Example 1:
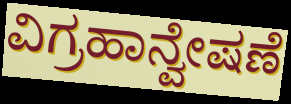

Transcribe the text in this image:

ವಿಗ್ರಹಾನ್ವೇಷಣೆ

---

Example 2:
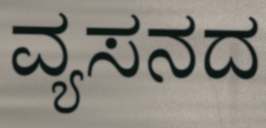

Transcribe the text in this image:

ವ್ಯಸನದ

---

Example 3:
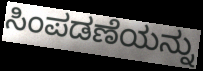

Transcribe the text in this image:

ಸಿಂಪಡಣೆಯನ್ನು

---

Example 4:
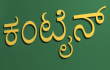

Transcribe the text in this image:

ಕಂಟೈನ್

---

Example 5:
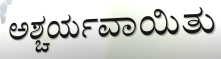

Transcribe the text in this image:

ಅಶ್ಚರ್ಯವಾಯಿತು